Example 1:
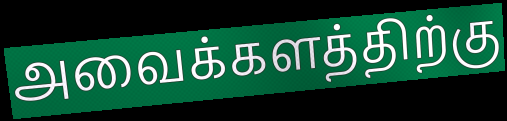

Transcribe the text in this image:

அவைக்களத்திற்கு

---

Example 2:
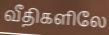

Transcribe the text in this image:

வீதிகளிலே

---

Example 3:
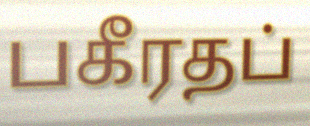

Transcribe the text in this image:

பகீரதப்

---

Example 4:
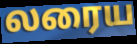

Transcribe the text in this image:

லரைய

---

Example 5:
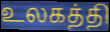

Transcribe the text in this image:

உலகத்தி